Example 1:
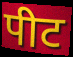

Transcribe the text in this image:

पीट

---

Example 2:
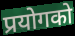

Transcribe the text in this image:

प्रयोगको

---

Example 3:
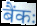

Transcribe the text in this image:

बैंकः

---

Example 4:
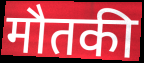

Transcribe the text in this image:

मौतकी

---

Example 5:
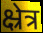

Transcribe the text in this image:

क्ष्रेत्र